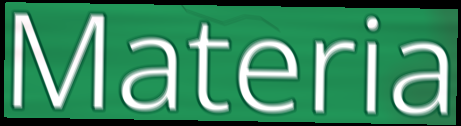
Materia